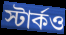
স্টার্কও